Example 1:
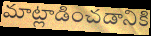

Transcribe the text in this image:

మాట్లాడించడానికి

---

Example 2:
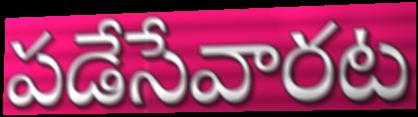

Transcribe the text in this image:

పడేసేవారట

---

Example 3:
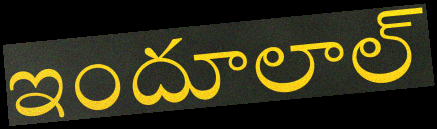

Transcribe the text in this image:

ఇందూలాల్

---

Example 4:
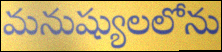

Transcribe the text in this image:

మనుష్యులలోను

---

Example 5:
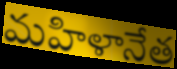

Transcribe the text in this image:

మహిళానేత